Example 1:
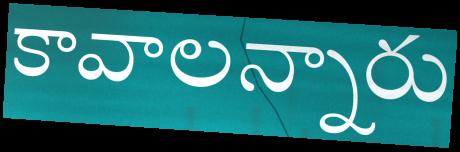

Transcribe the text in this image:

కావాలన్నారు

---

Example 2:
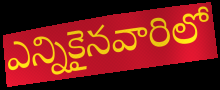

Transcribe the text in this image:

ఎన్నికైనవారిలో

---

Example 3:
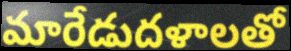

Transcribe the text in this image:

మారేడుదళాలతో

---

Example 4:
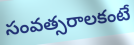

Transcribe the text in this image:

సంవత్సరాలకంటే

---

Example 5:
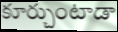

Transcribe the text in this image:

కూర్చుంటాడా